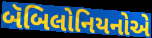
બૅબિલોનિયનોએ